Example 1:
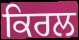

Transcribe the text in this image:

ਕਿਰਲ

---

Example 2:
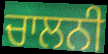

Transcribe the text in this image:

ਚਾਲਨੀ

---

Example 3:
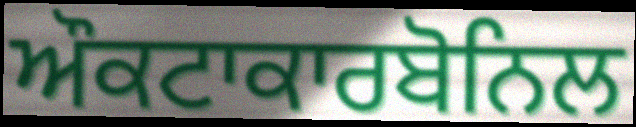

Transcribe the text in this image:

ਔਕਟਾਕਾਰਬੋਨਿਲ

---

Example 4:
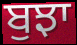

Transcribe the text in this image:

ਬੁਝਾ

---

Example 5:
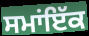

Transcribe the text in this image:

ਸਮਾਂਇੱਕ